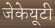
जेकेयूटी